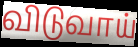
விடுவாய்